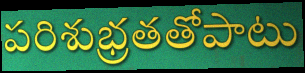
పరిశుభ్రతతోపాటు